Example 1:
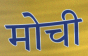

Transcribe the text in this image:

मोची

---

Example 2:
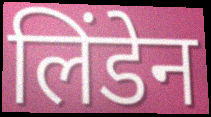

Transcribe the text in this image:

लिंडेन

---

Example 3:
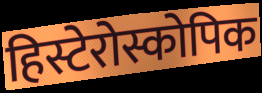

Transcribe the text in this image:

हिस्टेरोस्कोपिक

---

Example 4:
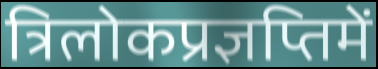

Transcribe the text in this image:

त्रिलोकप्रज्ञप्तिमें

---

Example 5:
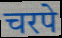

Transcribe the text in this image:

चरपे